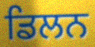
ਡਿਲਨ